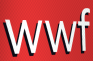
wwf